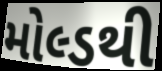
મોલ્ડથી